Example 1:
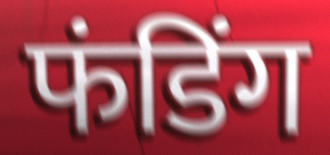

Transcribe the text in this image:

फंडिंग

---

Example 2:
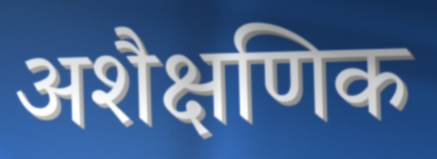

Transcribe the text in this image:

अशैक्षणिक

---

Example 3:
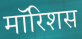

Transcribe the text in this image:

मॉरिशस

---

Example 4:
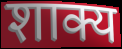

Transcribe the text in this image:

शाक्य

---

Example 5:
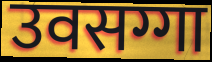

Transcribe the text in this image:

उवसग्गा